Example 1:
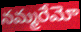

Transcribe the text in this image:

నమ్మరేమో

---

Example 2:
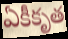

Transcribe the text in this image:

ఏకీకృత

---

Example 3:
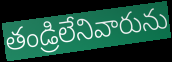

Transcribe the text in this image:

తండ్రిలేనివారును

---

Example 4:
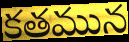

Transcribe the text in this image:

కతమున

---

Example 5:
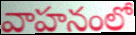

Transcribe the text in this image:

వాహనంలో